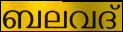
ബലവദ്